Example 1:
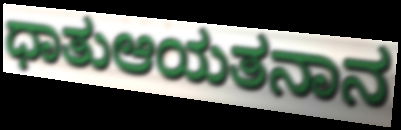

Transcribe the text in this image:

ಧಾತುಆಯತನಾನ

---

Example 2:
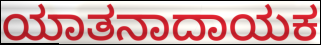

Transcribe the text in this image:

ಯಾತನಾದಾಯಕ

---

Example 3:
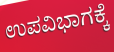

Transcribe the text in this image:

ಉಪವಿಭಾಗಕ್ಕೆ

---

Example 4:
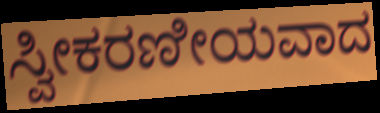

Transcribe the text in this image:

ಸ್ವೀಕರಣೀಯವಾದ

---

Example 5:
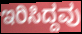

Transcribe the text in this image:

ಇರಿಸಿದ್ದವು